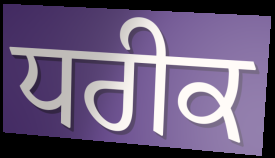
ਧਰੀਕ